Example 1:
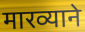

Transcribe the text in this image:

मारव्याने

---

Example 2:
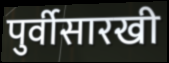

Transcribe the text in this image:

पुर्वीसारखी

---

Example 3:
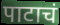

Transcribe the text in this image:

पाटाचं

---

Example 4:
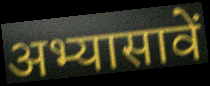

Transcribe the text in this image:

अभ्यासावें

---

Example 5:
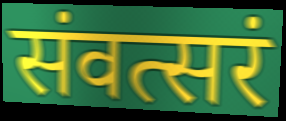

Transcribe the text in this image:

संवत्सरं